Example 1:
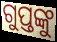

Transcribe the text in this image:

ଗୁପ୍ତଙ୍କୁ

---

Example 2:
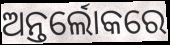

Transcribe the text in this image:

ଅନ୍ତର୍ଲୋକରେ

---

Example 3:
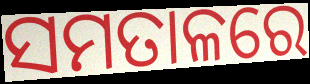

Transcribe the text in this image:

ସମତାଳରେ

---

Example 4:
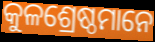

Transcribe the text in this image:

କୁଳଶ୍ରେଷ୍ଠମାନେ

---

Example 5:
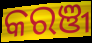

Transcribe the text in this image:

କରଞ୍ଜ